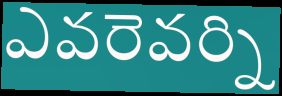
ఎవరెవర్ని